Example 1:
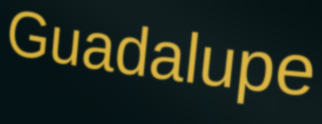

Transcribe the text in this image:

Guadalupe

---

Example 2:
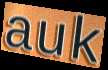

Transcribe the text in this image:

auk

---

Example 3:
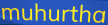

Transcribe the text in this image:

muhurtha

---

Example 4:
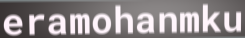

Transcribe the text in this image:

eramohanmku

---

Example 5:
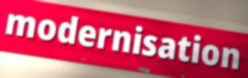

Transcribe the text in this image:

modernisation